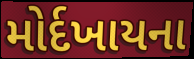
મોર્દખાયના